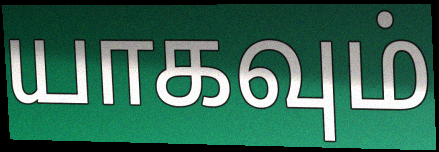
யாகவும்